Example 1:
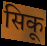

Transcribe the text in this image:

सिकू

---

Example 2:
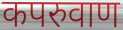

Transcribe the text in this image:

कपरुवाण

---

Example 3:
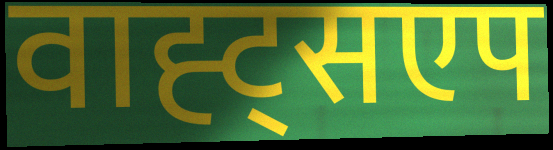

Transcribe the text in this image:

वाह्ट्सएप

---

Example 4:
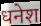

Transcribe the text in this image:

धनेश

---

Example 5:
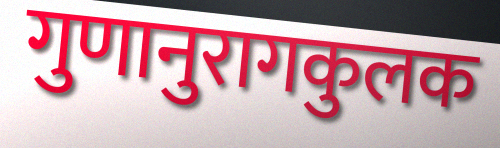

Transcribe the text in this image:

गुणानुरागकुलक